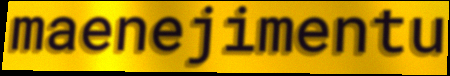
maenejimentu